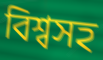
বিশ্বসহ